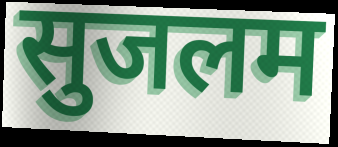
सुजलम